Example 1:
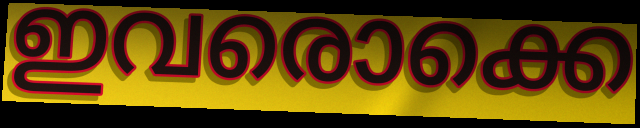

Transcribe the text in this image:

ഇവരൊക്കെ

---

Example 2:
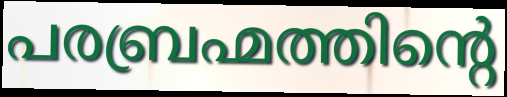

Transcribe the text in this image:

പരബ്രഹ്മത്തിന്റെ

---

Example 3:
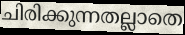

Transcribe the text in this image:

ചിരിക്കുന്നതല്ലാതെ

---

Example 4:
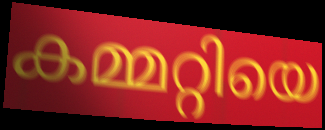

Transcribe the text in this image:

കമ്മറ്റിയെ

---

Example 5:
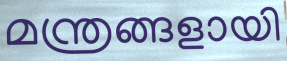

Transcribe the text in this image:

മന്ത്രങ്ങളായി